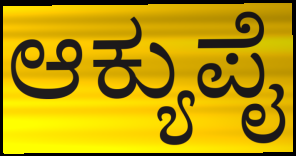
ಆಕ್ಯುಪೈ